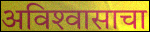
अविश्‍वासाचा